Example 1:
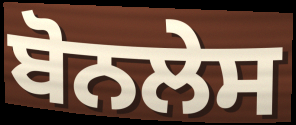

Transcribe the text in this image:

ਬੋਨਲੇਸ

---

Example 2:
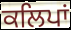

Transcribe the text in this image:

ਕਲਿਪਾਂ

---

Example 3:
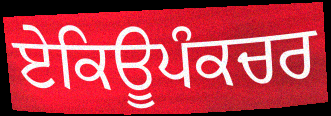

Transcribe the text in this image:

ਏਕਿਊਪੰਕਚਰ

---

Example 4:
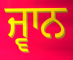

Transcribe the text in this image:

ਜ੍ਵਾਨ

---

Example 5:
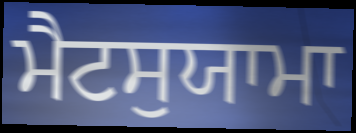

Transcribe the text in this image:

ਮੈਟਸੁਯਾਮਾ